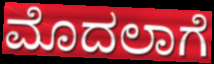
ಮೊದಲಾಗೆ